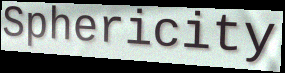
Sphericity